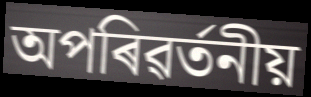
অপৰিৱৰ্তনীয়